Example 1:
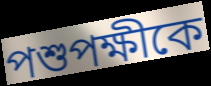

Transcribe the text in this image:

পশুপক্ষীকে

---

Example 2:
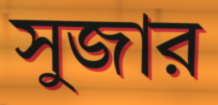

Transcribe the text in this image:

সুজার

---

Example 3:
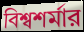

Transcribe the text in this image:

বিশ্বশর্মার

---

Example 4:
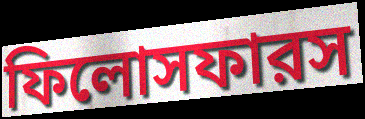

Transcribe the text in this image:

ফিলোসফারস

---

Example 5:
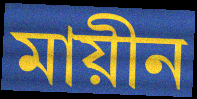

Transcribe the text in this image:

মায়ীন